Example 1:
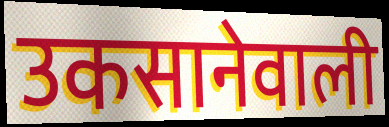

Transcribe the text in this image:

उकसानेवाली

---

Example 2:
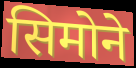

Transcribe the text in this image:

सिमोने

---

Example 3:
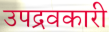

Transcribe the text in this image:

उपद्रवकारी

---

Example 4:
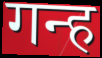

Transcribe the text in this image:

गन्ह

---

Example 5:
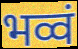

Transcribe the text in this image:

भव्वं